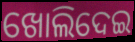
ଖୋଲିଦେଇ